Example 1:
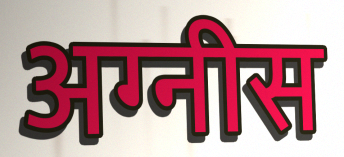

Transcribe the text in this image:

अग्नीस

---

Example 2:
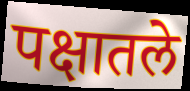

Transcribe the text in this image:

पक्षातले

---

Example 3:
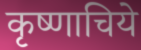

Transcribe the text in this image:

कृष्णाचिये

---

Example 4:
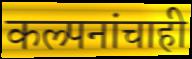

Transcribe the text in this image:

कल्पनांचाही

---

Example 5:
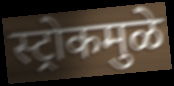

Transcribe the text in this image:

स्ट्रोकमुळे